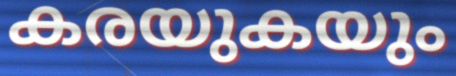
കരയുകയും